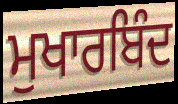
ਮੁਖਾਰਬਿੰਦ